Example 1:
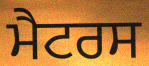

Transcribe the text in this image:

ਮੈਟਰਸ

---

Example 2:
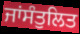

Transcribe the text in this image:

ਜਾਂਸੰਤੁਲਿਤ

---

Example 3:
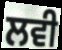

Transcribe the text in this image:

ਲਵੀ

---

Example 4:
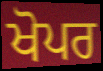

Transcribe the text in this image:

ਖੋਪਰ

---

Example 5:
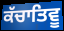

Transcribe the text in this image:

ਕੱਚਾਤਿਵੂ